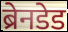
ब्रेनडेड